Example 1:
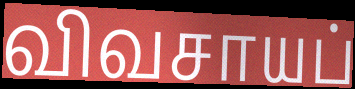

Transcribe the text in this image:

விவசாயப்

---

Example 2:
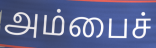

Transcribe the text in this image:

அம்பைச்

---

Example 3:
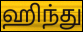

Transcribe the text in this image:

ஹிந்து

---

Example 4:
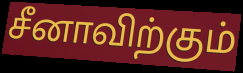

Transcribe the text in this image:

சீனாவிற்கும்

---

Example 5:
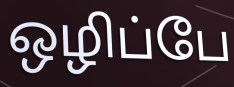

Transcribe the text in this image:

ஒழிப்பே